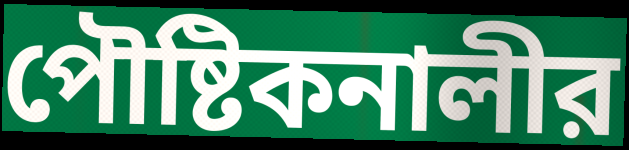
পৌষ্টিকনালীর